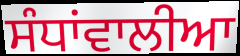
ਸੰਧਾਂਵਾਲੀਆ